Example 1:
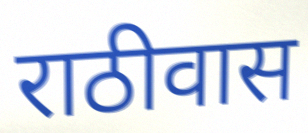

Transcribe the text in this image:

राठीवास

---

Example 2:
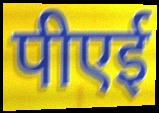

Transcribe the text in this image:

पीएई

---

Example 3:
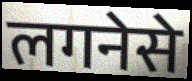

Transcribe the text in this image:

लगनेसे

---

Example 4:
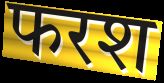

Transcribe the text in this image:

फरश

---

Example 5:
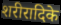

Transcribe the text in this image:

शरीरादिके